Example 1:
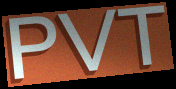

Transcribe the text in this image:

PVT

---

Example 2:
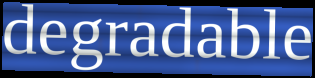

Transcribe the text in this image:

degradable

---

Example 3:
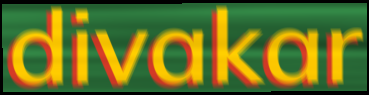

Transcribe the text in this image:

divakar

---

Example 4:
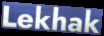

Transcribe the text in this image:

Lekhak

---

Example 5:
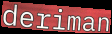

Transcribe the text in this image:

deriman